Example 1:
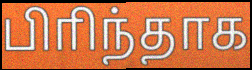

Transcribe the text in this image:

பிரிந்தாக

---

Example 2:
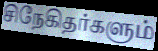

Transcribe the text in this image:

சிநேகிதர்களும்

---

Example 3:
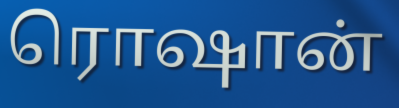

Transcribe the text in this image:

ரொஷான்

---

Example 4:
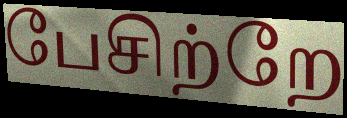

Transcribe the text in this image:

பேசிற்றே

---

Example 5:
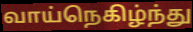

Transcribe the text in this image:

வாய்நெகிழ்ந்து